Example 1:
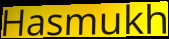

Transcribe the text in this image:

Hasmukh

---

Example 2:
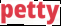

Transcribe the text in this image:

petty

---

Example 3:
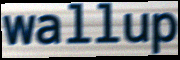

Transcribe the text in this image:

wallup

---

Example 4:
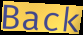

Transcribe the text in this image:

Back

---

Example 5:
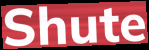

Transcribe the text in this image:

Shute